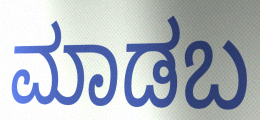
ಮಾಡಬ